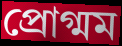
প্রোগ্মম